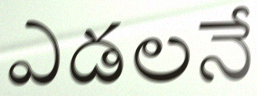
ఎడలనే